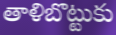
తాళిబొట్టుకు